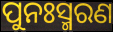
ପୁନଃସ୍ମରଣ